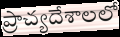
ప్రాచ్యదేశాలలో